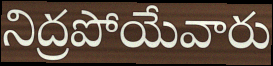
నిద్రపోయేవారు